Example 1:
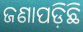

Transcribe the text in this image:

ଜଣାପଡ଼ିଛି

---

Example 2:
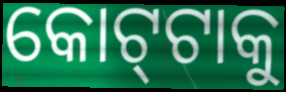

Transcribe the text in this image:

କୋଟ୍‌ଟାକୁ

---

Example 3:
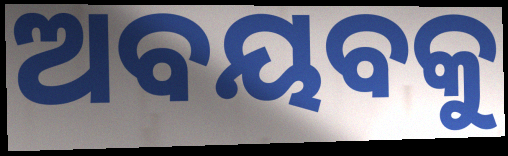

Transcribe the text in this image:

ଅବୟବକୁ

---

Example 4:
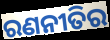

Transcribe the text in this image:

ରଣନୀତିର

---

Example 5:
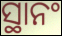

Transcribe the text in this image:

ସ୍ଥାନଂ